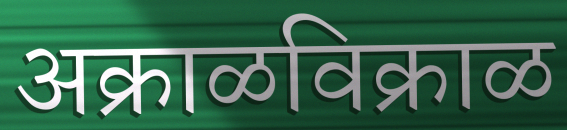
अक्राळविक्राळ